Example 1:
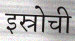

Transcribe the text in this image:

इस्रोची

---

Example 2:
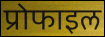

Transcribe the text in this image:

प्रोफाइल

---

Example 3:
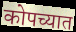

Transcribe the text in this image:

कोपच्यात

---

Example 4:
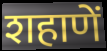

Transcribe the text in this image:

शहाणें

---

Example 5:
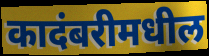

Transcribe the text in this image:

कादंबरीमधील